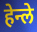
हेन्ले